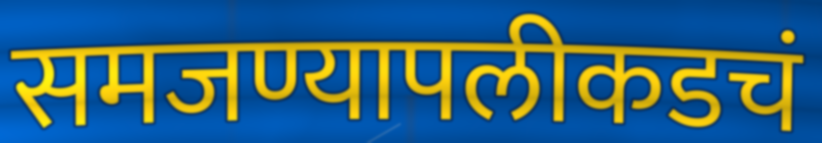
समजण्यापलीकडचं